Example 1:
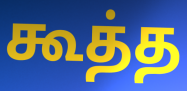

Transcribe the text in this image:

கூத்த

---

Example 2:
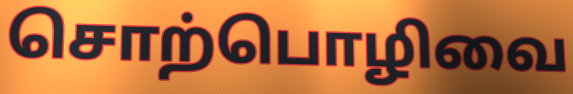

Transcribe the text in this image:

சொற்பொழிவை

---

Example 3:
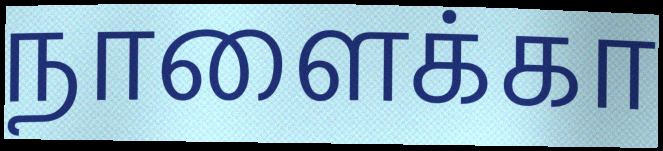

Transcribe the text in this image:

நாளைக்கா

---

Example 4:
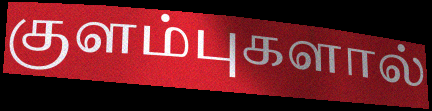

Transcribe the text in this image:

குளம்புகளால்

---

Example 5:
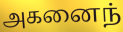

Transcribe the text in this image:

அகனைந்